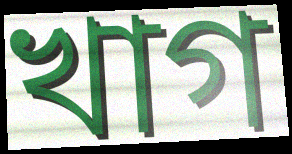
খাগ